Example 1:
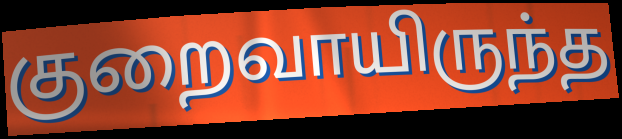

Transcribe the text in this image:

குறைவாயிருந்த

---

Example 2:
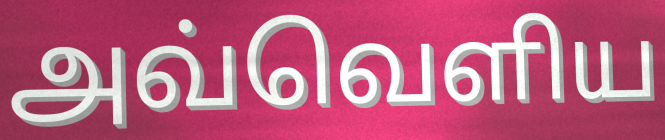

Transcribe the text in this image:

அவ்வெளிய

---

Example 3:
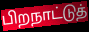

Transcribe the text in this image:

பிறநாட்டுத்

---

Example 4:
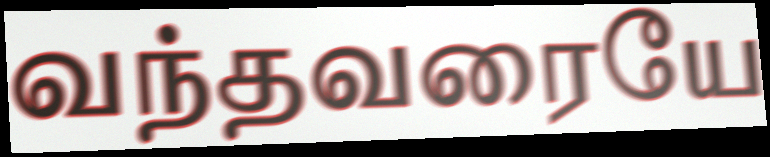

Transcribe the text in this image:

வந்தவரையே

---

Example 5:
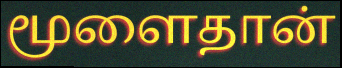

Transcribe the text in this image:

மூளைதான்